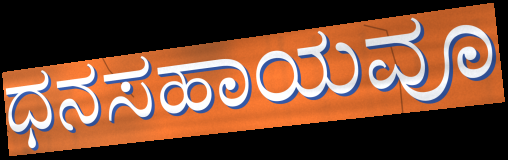
ಧನಸಹಾಯವೂ